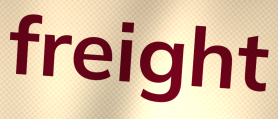
freight